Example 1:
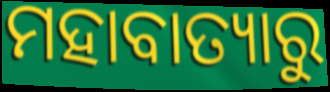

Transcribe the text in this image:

ମହାବାତ୍ୟାରୁ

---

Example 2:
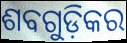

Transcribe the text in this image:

ଶବଗୁଡ଼ିକର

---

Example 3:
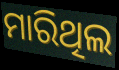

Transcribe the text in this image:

ମାରିଥିଲ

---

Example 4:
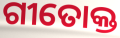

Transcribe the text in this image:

ଗୀତୋକ୍ତ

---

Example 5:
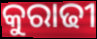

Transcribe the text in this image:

କୁରାଢୀ